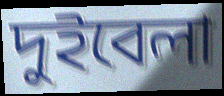
দুইবেলা